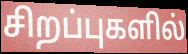
சிறப்புகளில்